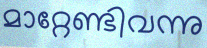
മാറ്റേണ്ടിവന്നു